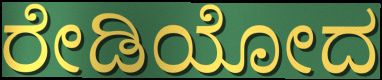
ರೇಡಿಯೋದ